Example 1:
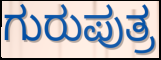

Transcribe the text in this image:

ಗುರುಪುತ್ರ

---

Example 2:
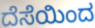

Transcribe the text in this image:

ದೆಸೆಯಿಂದ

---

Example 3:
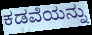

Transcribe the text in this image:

ಕಡವೆಯನ್ನು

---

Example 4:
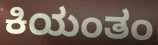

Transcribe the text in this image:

ಕಿಯಂತಂ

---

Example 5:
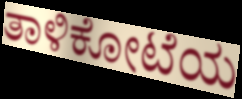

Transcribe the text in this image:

ತಾಳಿಕೋಟೆಯ